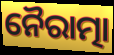
ନୈରାତ୍ମା